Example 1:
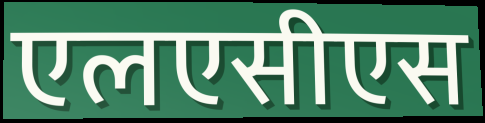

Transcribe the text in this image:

एलएसीएस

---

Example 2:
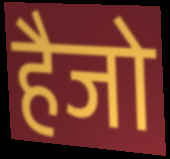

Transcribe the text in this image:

हैजो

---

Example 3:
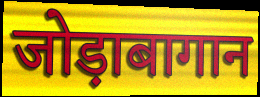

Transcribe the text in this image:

जोड़ाबागान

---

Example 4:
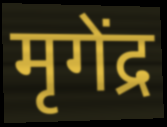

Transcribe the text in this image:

मृगेंद्र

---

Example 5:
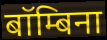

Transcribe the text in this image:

बॉम्बिना